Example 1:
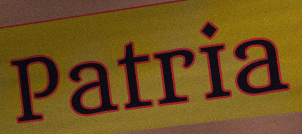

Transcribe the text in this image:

Patria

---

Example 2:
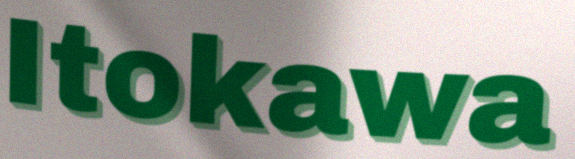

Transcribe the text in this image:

Itokawa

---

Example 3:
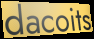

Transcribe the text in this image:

dacoits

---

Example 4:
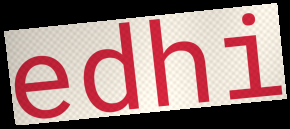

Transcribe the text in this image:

edhi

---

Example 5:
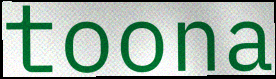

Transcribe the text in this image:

toona